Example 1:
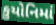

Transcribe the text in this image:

કુયોનિમાં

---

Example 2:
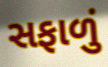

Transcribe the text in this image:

સફાળું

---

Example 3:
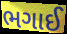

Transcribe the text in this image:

ભગાઈ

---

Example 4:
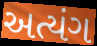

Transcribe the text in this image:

અત્યંગ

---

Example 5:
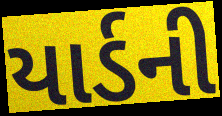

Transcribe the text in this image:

યાર્ડની